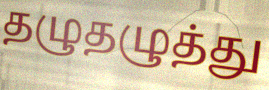
தழுதழுத்து